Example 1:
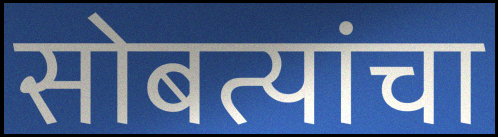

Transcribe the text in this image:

सोबत्यांचा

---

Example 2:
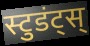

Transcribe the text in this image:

स्टुडंट्स्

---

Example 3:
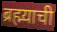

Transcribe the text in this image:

ब्रह्म्याची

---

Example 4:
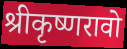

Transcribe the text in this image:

श्रीकृष्णरावो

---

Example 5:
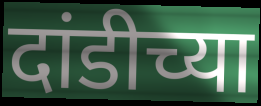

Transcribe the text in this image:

दांडीच्या